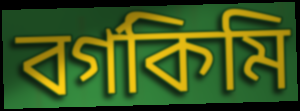
বৰ্গকিমি